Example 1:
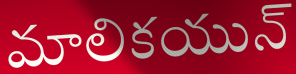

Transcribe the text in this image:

మాలికయున్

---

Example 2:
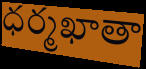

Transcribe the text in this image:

ధర్మఖాతా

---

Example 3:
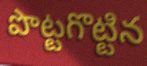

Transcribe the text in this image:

పొట్టగొట్టిన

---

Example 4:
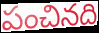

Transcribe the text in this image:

పంచినది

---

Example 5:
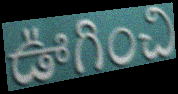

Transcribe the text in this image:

ఊగించి